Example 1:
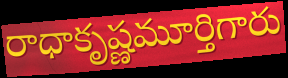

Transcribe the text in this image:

రాధాకృష్ణమూర్తిగారు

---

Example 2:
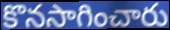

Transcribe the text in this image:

కొనసాగించారు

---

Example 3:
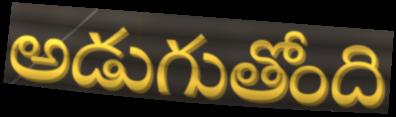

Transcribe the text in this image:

అడుగుతోంది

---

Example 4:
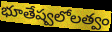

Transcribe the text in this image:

భూతేష్వలోలత్వం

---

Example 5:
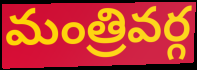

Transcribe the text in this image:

మంత్రివర్గ